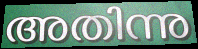
അതിന്നു